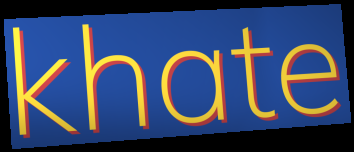
khate